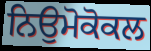
ਨਿਉਮੋਕੋਕਲ